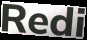
Redi